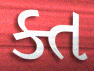
ક્ત